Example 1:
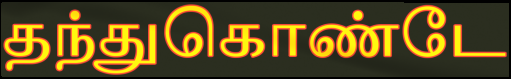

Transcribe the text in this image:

தந்துகொண்டே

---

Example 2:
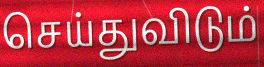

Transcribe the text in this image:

செய்துவிடும்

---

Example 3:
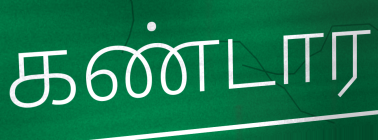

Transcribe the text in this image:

கண்டார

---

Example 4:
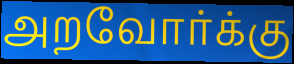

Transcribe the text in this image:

அறவோர்க்கு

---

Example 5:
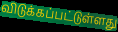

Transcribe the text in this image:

விடுக்கப்பட்டுள்ளது